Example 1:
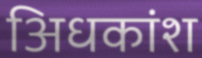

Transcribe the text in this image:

अिधकांश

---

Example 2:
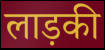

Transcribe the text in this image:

लाड़की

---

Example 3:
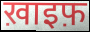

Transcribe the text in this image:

ख़ाइफ़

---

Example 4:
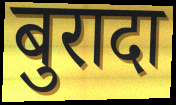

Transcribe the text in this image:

बुरादा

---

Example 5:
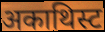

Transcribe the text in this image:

अकाथिस्ट